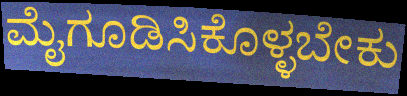
ಮೈಗೂಡಿಸಿಕೊಳ್ಳಬೇಕು